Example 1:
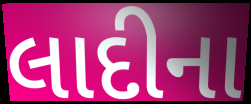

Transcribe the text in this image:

લાદીના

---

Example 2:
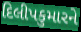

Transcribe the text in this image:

દિલીપકુમારને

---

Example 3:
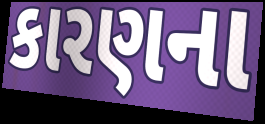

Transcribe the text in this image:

કારણના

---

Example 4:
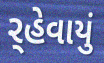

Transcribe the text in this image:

ર્‌હેવાયું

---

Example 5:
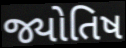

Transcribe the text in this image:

જ્યોતિષ